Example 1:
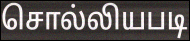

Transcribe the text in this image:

சொல்லியபடி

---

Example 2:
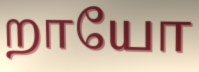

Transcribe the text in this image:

றாயோ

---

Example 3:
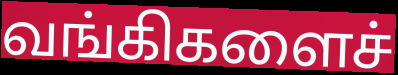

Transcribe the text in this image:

வங்கிகளைச்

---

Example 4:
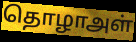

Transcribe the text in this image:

தொழாஅள்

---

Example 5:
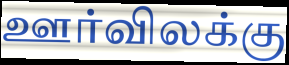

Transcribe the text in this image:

ஊர்விலக்கு